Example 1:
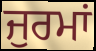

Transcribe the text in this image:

ਜੁਰਮਾਂ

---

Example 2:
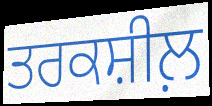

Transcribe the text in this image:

ਤਰਕਸ਼ੀਲ਼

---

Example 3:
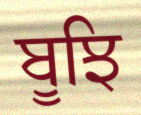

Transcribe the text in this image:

ਬੂਝਿ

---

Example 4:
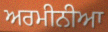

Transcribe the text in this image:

ਅਰਮੀਨੀਆ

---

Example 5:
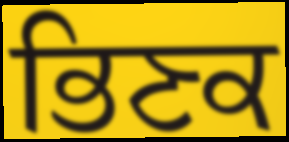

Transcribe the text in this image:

ਭਿਣਕ